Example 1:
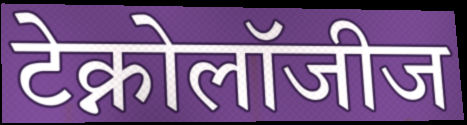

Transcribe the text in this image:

टेक्नोलॉजीज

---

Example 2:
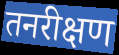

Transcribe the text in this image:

तनरीक्षण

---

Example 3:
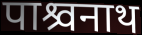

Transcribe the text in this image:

पाश्र्वनाथ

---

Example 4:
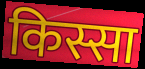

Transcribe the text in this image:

किस्सा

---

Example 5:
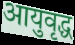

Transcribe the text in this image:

आयुवृद्ध